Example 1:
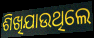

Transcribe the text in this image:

ଶିଖିଯାଉଥିଲେ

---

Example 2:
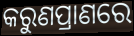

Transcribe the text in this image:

କରୁଣପ୍ରାଣରେ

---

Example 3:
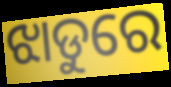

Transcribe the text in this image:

ଝାଡୁରେ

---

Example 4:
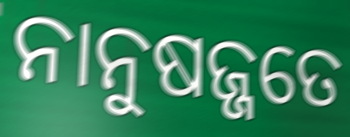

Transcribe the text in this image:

ନାନୁଷଜ୍ଜତେ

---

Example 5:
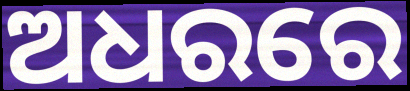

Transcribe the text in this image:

ଅଧରରେ